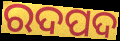
ରଦପଦ